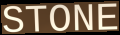
STONE